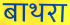
बाथरा